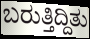
ಬರುತ್ತಿದ್ದಿತು